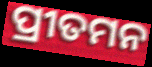
ପ୍ରୀତମନ